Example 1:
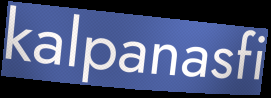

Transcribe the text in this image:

kalpanasfi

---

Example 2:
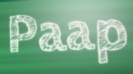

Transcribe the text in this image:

Paap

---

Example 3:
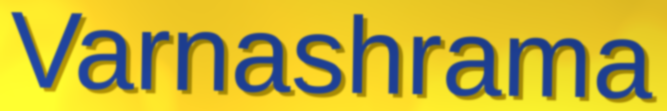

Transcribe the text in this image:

Varnashrama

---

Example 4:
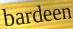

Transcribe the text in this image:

bardeen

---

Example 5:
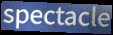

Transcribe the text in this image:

spectacle